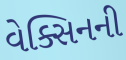
વેક્સિનની